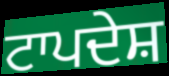
ਟਾਪਦੇਸ਼